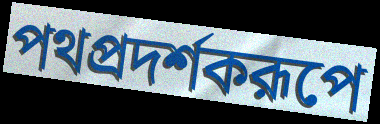
পথপ্রদর্শকরূপে